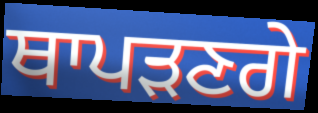
ਥਾਪੜਣਗੇ